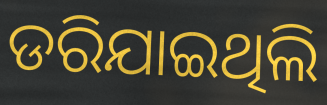
ଡରିଯାଇଥିଲି